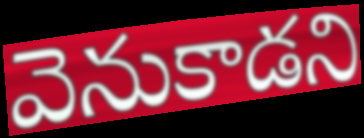
వెనుకాడని